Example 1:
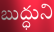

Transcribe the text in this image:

బుద్ధుని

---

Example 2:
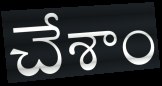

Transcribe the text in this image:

చేశాం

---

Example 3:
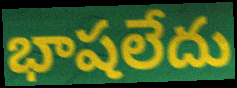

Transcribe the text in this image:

భాషలేదు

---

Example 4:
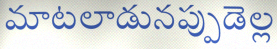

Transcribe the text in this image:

మాటలాడునప్పుడెల్ల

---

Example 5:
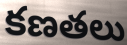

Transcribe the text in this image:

కణతలు